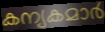
കന്യകമാർ